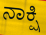
ನಾಕ್ಷಿ